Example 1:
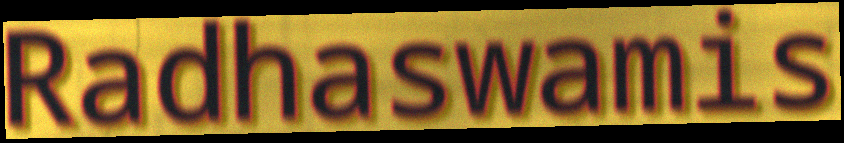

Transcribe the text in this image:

Radhaswamis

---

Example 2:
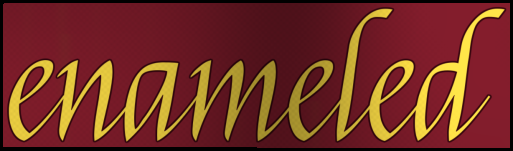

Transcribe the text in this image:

enameled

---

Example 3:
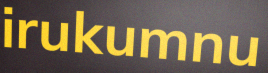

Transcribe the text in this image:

irukumnu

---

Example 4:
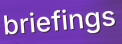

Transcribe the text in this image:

briefings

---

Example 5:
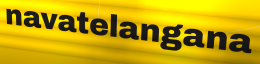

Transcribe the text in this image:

navatelangana